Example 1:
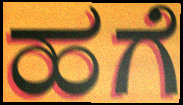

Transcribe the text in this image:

ಹಗೆ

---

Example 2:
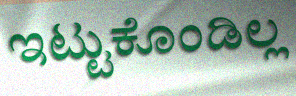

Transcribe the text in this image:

ಇಟ್ಟುಕೊಂಡಿಲ್ಲ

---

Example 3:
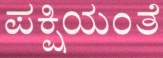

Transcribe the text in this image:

ಪಕ್ಷಿಯಂತೆ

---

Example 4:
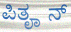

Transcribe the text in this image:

ಪಿತೄನ್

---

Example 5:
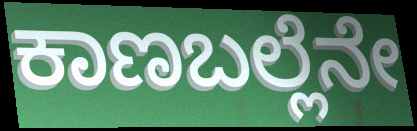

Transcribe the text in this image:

ಕಾಣಬಲ್ಲೆನೇ